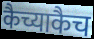
कैच्याकैच